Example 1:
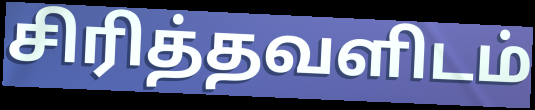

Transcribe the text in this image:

சிரித்தவளிடம்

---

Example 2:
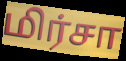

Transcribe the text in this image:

மிர்சா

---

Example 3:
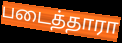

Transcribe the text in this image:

படைத்தாரா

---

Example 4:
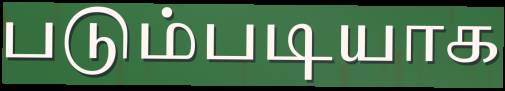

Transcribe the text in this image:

படும்படியாக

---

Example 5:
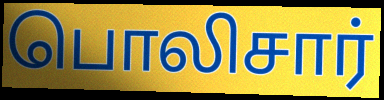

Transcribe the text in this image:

பொலிசார்